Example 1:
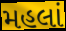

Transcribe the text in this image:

મહલાં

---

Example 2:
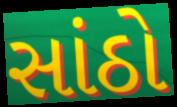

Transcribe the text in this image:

સાંઠો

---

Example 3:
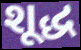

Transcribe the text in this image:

શૂદ્ધ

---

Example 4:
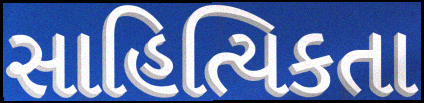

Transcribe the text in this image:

સાહિત્યિકતા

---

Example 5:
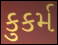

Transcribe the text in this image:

કુકર્મ